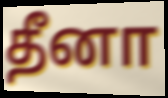
தீனா